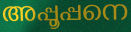
അപ്പൂപ്പനെ